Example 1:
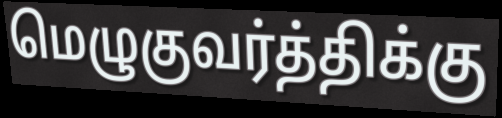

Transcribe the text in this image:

மெழுகுவர்த்திக்கு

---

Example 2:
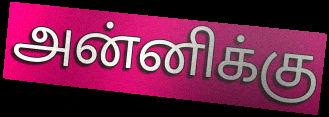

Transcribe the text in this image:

அன்னிக்கு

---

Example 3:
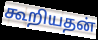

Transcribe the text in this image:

கூறியதன்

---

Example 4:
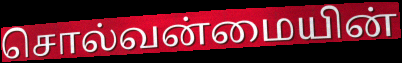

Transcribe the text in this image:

சொல்வன்மையின்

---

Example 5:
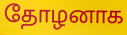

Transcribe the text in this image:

தோழனாக